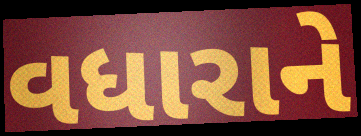
વધારાને